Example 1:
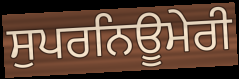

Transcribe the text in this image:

ਸੁਪਰਨਿਊਮੇਰੀ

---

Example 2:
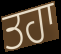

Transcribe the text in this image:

ਤਹਾ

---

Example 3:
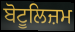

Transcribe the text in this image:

ਬੋਟੂਲਿਜ਼ਮ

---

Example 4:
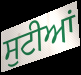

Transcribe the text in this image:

ਸੁਟੀਆਂ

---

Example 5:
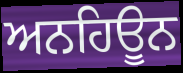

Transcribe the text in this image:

ਅਨਹਿਊਨ